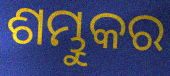
ଶମ୍ଭୁକର